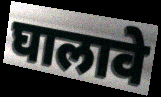
घालावे